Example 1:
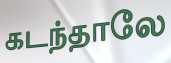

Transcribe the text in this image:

கடந்தாலே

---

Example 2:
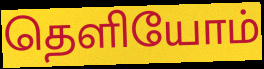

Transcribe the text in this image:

தெளியோம்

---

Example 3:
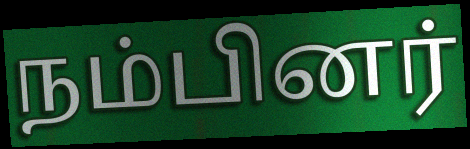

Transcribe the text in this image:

நம்பினர்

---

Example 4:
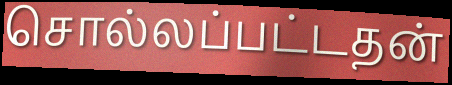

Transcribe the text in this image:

சொல்லப்பட்டதன்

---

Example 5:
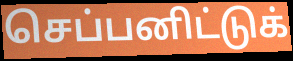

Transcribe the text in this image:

செப்பனிட்டுக்